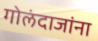
गोलंदाजांना